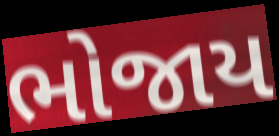
ભોજાય